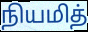
நியமித்